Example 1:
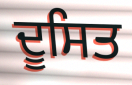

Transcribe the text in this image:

ਦੂਸਿਤ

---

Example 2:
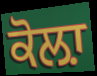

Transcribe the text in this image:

ਕੋਲ਼ਾ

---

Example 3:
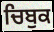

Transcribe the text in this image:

ਚਿਬੁਕ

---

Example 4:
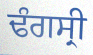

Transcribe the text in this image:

ਢੰਗਸ੍ਰੀ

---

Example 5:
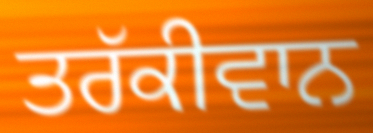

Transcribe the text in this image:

ਤਰੱਕੀਵਾਨ